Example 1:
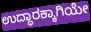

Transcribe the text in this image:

ಉದ್ಧಾರಕ್ಕಾಗಿಯೇ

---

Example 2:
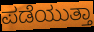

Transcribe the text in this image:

ಪಡೆಯುತ್ತಾ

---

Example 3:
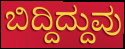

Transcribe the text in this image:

ಬಿದ್ದಿದ್ದುವು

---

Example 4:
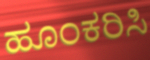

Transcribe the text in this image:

ಹೂಂಕರಿಸಿ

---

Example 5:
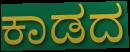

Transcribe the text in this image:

ಕಾಡದ